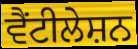
ਵੈਂਟੀਲੇਸ਼ਨ